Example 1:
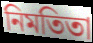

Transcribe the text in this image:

নিমতিতা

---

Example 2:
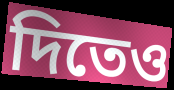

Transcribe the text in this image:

দিতেও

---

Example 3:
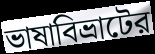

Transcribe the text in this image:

ভাষাবিভ্রাটের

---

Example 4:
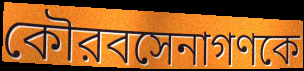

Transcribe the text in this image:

কৌরবসেনাগণকে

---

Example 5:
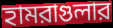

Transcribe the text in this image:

হামরাগুলার